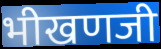
भीखणजी